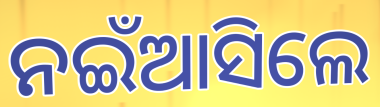
ନଇଁଆସିଲେ